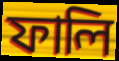
ফালি